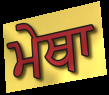
ਮੇਥਾ